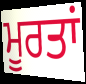
ਮੂਰਤਾਂ